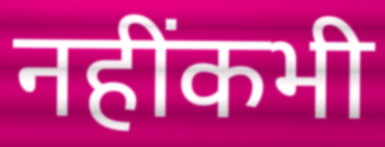
नहींकभी